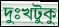
দুঃখটুকু